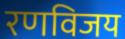
रणविजय